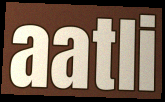
aatli